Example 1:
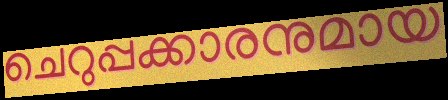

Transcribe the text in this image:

ചെറുപ്പക്കാരനുമായ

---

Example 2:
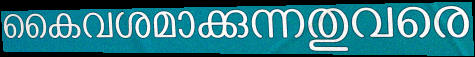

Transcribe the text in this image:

കൈവശമാക്കുന്നതുവരെ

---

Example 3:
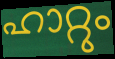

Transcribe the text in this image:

ഹാറ്റും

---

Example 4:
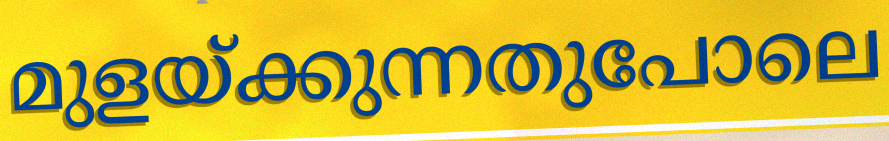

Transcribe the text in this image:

മുളയ്ക്കുന്നതുപോലെ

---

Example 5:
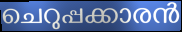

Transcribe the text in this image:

ചെറുപ്പക്കാരൻ